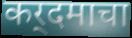
कर्दमाचा